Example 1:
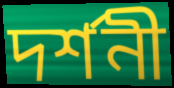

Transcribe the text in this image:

দৰ্শনী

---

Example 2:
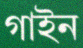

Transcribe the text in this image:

গাইন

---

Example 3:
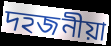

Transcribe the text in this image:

দহজনীয়া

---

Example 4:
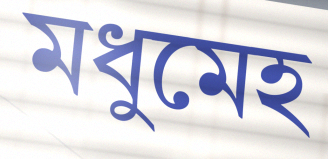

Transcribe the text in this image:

মধুমেহ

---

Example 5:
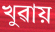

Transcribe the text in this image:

খুৱায়